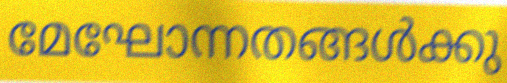
മേഘോന്നതങ്ങൾക്കു